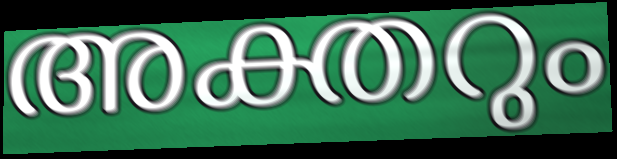
അക്തറും